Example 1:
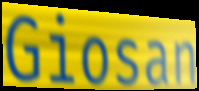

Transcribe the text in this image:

Giosan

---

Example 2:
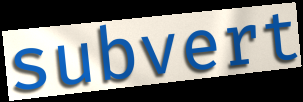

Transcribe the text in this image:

subvert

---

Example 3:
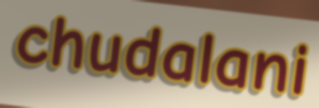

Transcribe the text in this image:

chudalani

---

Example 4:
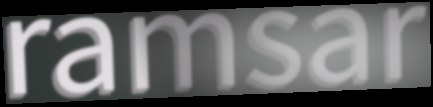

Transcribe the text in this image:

ramsar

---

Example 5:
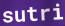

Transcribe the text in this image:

sutri